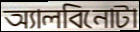
অ্যালবিনোটা